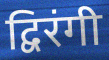
द्विरंगी